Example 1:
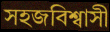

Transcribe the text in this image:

সহজবিশ্বাসী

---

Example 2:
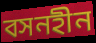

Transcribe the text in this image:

বসনহীন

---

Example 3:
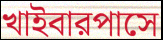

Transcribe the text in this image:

খাইবারপাসে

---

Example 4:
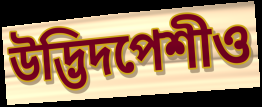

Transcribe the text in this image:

উদ্ভিদপেশীও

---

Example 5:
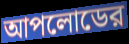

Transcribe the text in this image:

আপলোডের